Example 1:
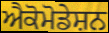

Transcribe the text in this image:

ਐਕੋਮੋਡੇਸ਼ਨ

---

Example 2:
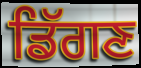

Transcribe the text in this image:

ਡਿੱਗਣ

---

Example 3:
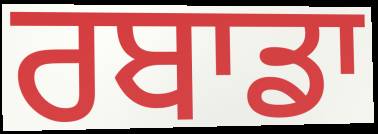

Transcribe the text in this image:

ਰਬਾਡਾ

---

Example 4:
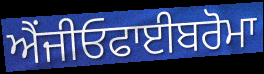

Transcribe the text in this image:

ਐਂਜੀਓਫਾਈਬਰੋਮਾ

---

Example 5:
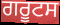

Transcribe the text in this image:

ਗਰੂਟਸ